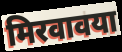
मिरवावया